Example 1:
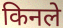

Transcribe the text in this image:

किनले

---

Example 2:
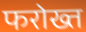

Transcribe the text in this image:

फरोख्‍त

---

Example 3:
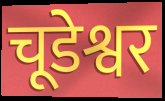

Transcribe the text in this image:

चूडेश्वर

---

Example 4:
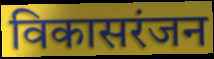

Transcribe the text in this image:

विकासरंजन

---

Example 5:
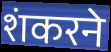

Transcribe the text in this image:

शंकरने